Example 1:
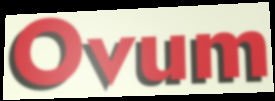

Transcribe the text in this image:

Ovum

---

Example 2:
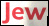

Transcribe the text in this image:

Jew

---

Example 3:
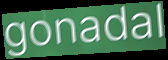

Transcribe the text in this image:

gonadal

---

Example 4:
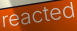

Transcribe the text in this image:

reacted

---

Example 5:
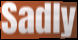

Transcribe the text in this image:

Sadly